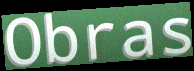
Obras